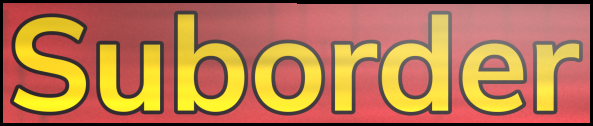
Suborder